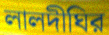
লালদীঘির